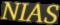
NIAS